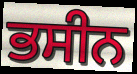
ਭਸੀਨ